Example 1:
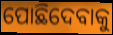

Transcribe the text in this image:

ପୋଛିଦେବାକୁ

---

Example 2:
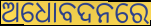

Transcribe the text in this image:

ଅଧୋବଦନରେ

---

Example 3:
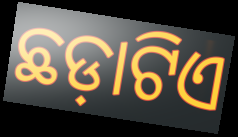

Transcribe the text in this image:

ଛଡ଼ାଟିଏ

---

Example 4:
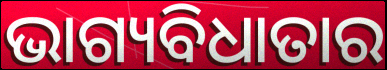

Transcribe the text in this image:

ଭାଗ୍ୟବିଧାତାର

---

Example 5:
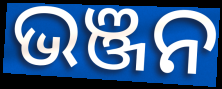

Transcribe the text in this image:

ଭଞ୍ଜନ